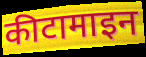
कीटामाइन